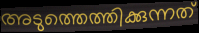
അടുത്തെത്തിക്കുന്നത്